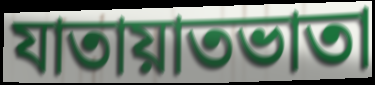
যাতায়াতভাতা